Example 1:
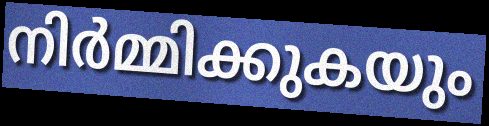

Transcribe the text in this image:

നിർമ്മിക്കുകയും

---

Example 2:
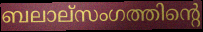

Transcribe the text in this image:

ബലാല്സംഗത്തിന്റെ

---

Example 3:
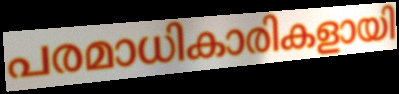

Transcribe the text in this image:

പരമാധികാരികളായി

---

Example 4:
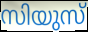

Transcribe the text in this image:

സിയുസ്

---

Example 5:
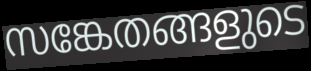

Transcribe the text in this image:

സങ്കേതങ്ങളുടെ